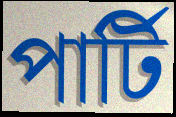
পাৰ্টি